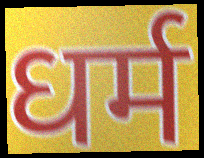
धर्म